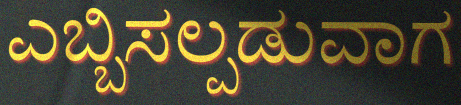
ಎಬ್ಬಿಸಲ್ಪಡುವಾಗ